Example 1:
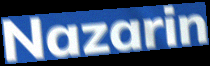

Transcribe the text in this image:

Nazarin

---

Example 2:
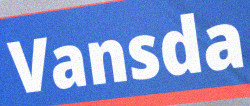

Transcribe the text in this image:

Vansda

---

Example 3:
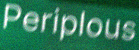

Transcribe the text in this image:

Periplous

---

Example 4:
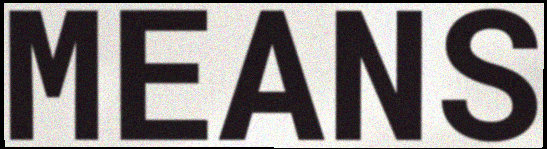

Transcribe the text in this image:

MEANS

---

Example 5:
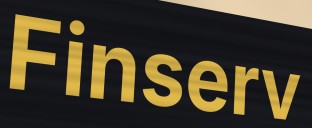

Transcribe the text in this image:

Finserv